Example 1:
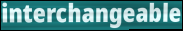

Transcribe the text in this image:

interchangeable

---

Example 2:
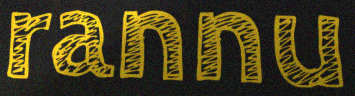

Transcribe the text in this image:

rannu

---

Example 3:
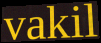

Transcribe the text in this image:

vakil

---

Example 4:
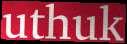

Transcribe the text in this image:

uthuk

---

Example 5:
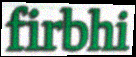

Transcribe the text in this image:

firbhi